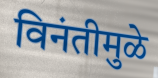
विनंतीमुळे